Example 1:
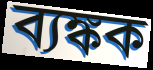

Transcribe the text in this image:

ব্যঙ্কক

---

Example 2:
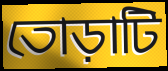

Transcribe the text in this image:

তোড়াটি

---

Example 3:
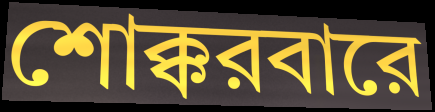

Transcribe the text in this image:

শোক্করবারে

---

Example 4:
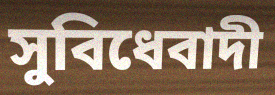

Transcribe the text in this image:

সুবিধেবাদী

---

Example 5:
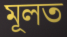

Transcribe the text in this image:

মূলত